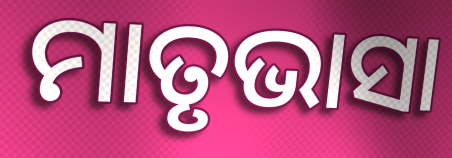
ମାତୃଭାସା